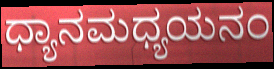
ಧ್ಯಾನಮಧ್ಯಯನಂ